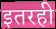
इतरही